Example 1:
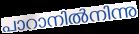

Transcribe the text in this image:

പാറാനിൽനിന്നു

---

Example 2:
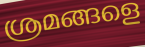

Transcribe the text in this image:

ശ്രമങ്ങളെ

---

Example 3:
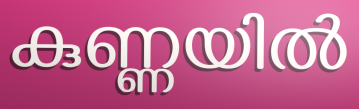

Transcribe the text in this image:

കുണ്ണയിൽ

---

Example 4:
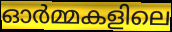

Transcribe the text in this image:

ഓർമ്മകളിലെ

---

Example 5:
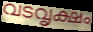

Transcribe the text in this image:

വടവൃക്ഷം